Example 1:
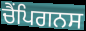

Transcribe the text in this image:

ਚੈਂਪਿਗਨਸ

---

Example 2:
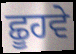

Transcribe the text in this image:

ਛੂਹਵੇ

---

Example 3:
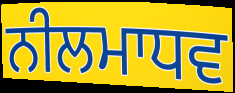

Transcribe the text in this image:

ਨੀਲਮਾਧਵ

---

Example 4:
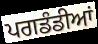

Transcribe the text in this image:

ਪਗਡੰਡੀਆਂ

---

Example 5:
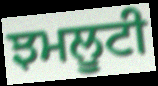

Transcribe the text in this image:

ਝਮਲੂਟੀ